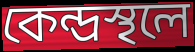
কেন্দ্রস্থলে